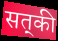
सत्‌की